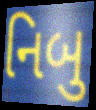
નિબુ